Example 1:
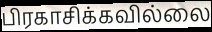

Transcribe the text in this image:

பிரகாசிக்கவில்லை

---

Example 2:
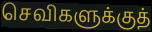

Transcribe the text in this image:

செவிகளுக்குத்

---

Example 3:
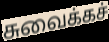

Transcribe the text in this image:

சுவைக்கச்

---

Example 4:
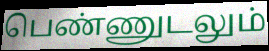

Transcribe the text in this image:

பெண்ணுடலும்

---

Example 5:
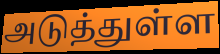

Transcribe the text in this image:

அடுத்துள்ள